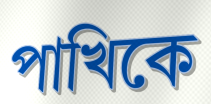
পাখিকে